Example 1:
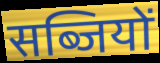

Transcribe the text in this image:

सब्जियों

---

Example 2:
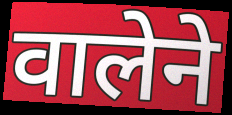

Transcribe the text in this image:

वालेने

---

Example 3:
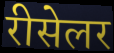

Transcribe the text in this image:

रीसेलर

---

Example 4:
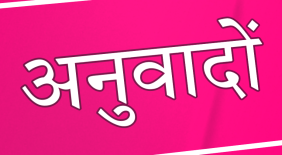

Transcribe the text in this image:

अनुवादों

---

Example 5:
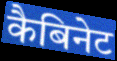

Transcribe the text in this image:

कैबिनेट